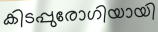
കിടപ്പുരോഗിയായി